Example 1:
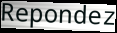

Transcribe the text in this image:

Repondez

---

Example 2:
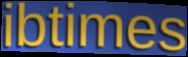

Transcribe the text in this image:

ibtimes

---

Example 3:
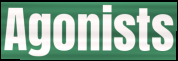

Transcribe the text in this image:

Agonists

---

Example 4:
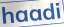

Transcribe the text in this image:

haadi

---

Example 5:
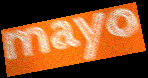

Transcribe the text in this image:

mayo